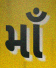
માઁ